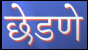
छेडणे